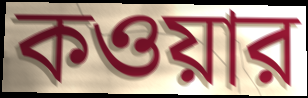
কওয়ার